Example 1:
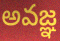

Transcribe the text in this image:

అవజ్ఞ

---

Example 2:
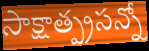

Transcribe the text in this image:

సాక్షాత్ప్రసన్నో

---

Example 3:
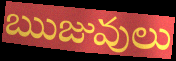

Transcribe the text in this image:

ఋజువులు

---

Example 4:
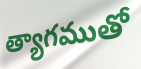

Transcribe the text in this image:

త్యాగముతో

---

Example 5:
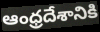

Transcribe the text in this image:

ఆంధ్రదేశానికి